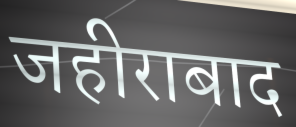
जहीराबाद